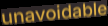
unavoidable